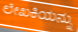
ಲೇಖಕಿಯನ್ನು